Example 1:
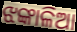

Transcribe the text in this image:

ଝଙ୍କାଳିଆ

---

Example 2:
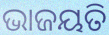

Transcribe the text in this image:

ଭାଜୟତି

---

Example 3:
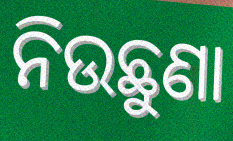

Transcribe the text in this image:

ନିଉଛୁଣା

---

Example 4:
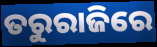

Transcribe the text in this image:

ତରୁରାଜିରେ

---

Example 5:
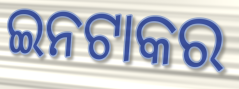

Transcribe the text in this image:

ଇନଟାକର